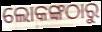
ଲୋକଙ୍କଠାରୁ